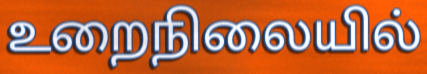
உறைநிலையில்